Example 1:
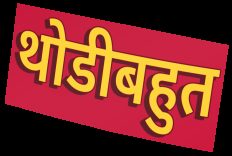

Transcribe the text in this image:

थोडीबहुत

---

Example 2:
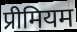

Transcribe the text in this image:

प्रीमियम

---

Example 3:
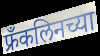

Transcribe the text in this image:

फ्रँकलिनच्या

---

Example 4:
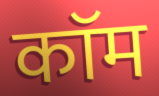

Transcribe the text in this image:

कॉम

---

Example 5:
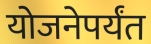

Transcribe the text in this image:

योजनेपर्यंत